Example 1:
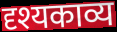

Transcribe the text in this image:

दृश्यकाव्य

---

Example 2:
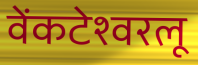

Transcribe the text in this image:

वेंकटेश्वरलू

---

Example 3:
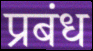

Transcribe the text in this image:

प्रबंध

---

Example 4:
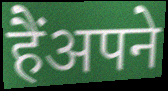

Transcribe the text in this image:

हैंअपने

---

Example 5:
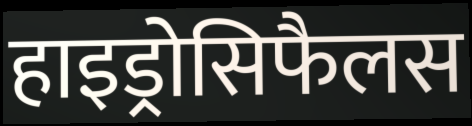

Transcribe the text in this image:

हाइड्रोसिफैलस